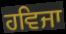
ਹਵਿਜਾ